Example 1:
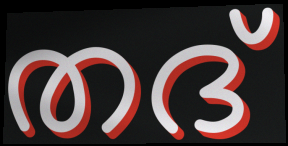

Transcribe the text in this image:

തദ്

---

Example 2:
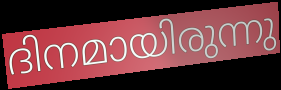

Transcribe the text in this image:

ദിനമായിരുന്നു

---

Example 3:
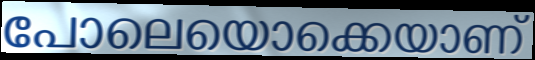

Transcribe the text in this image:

പോലെയൊക്കെയാണ്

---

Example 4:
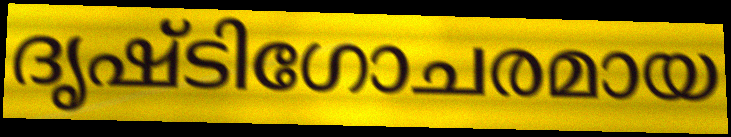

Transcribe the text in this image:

ദൃഷ്ടിഗോചരമായ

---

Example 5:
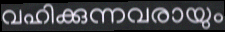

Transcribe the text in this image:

വഹിക്കുന്നവരായും